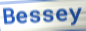
Bessey